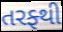
તરફ્થી